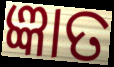
ଜ୍ଞାତ